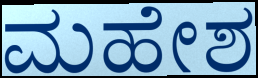
ಮಹೇಶ